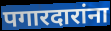
पगारदारांना